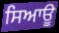
ਸਿਆਊ